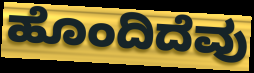
ಹೊಂದಿದೆವು